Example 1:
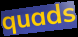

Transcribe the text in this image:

quads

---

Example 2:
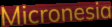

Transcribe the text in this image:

Micronesia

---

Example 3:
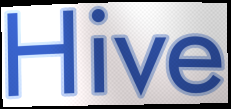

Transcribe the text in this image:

Hive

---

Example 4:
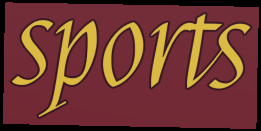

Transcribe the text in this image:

sports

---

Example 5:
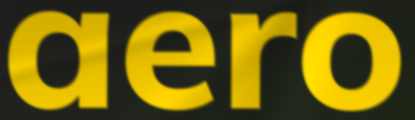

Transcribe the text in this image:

aero